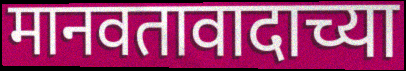
मानवतावादाच्या